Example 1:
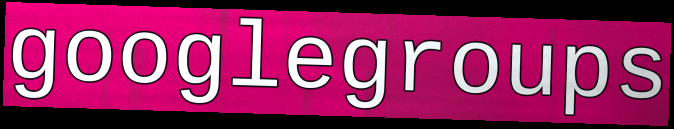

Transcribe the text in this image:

googlegroups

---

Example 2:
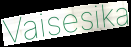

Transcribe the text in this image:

Vaisesika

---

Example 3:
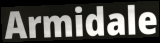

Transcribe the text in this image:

Armidale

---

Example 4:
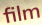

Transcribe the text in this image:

film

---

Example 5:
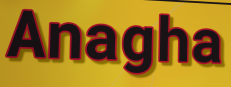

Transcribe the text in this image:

Anagha